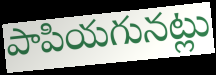
పాపియగునట్లు